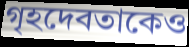
গৃহদেবতাকেও